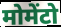
मोमेंटो